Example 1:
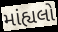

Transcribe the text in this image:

માંહ્યલો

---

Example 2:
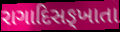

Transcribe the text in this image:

રાગાદિસઙ્ખાતા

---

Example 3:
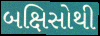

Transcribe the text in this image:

બક્ષિસોથી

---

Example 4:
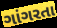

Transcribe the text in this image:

ગાંગરતા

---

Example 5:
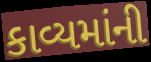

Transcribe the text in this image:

કાવ્યમાંની